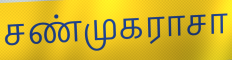
சண்முகராசா